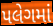
પલેગમાં